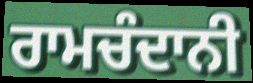
ਰਾਮਚੰਦਾਨੀ